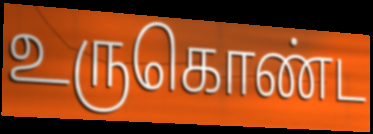
உருகொண்ட